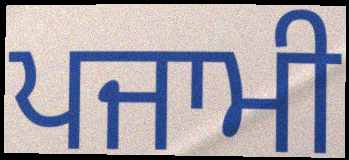
ਪਜਾਮੀ